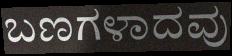
ಬಣಗಳಾದವು